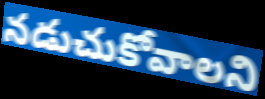
నడుచుకోవాలని